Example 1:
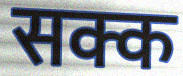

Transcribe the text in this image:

सक्क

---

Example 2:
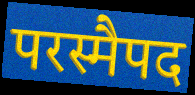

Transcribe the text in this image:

परस्मैपद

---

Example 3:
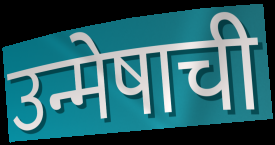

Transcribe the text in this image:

उन्मेषाची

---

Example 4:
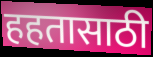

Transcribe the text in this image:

हहतासाठी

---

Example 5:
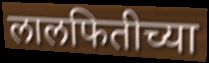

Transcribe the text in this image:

लालफितीच्या